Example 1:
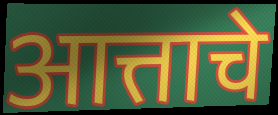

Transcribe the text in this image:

आत्ताचे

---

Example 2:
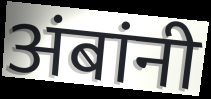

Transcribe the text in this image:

अंबांनी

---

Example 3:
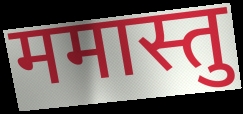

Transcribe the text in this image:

ममास्तु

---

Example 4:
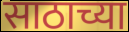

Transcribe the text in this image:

साठाच्या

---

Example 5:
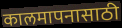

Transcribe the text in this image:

कालमापनासाठी